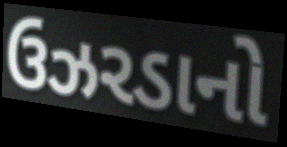
ઉઝરડાનો